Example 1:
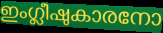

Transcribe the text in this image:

ഇംഗ്ലീഷുകാരനോ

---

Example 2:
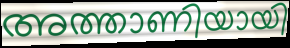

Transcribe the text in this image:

അത്താണിയായി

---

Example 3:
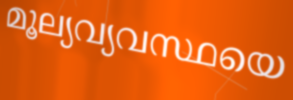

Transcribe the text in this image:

മൂല്യവ്യവസ്ഥയെ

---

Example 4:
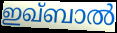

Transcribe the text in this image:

ഇഖ്ബാൽ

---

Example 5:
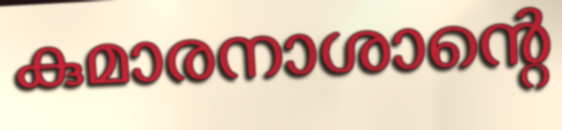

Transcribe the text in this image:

കുമാരനാശാന്റെ